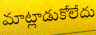
మాట్లాడుకోలేదు